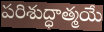
పరిశుద్ధాత్మయే